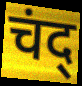
चंद्